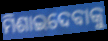
ମିଶାଇଦେବାକୁ